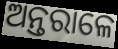
ଅନ୍ତରାଳେ